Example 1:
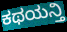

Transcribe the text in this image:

ಕಥಯನ್ತಿ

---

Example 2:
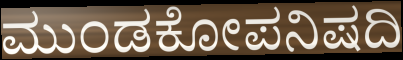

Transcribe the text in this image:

ಮುಂಡಕೋಪನಿಷದಿ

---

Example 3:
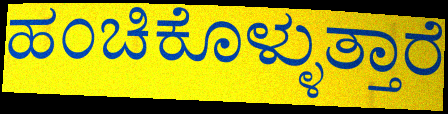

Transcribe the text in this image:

ಹಂಚಿಕೊಳ್ಳುತ್ತಾರೆ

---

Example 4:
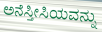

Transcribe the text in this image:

ಅನೆಸ್ತೀಸಿಯವನ್ನು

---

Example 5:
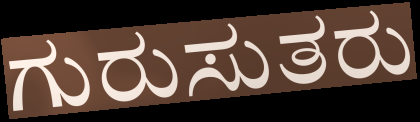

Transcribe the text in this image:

ಗುರುಸುತರು